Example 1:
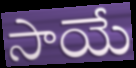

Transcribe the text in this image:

సాయే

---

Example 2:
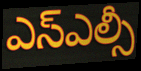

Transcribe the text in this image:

ఎస్ఎల్సీ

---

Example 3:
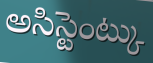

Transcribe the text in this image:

అసిస్టెంట్కు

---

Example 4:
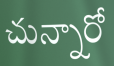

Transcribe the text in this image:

చున్నారో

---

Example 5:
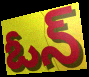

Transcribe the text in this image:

ఓన్